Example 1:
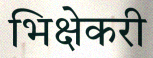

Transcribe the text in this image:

भिक्षेकरी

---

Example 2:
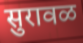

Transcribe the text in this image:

सुरावळ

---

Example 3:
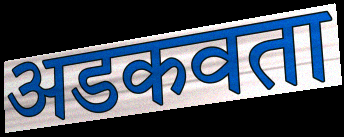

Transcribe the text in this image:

अडकवता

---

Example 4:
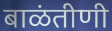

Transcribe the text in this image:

बाळंतीणी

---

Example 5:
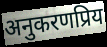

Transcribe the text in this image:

अनुकरणप्रिय